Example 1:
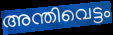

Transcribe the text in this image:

അന്തിവെട്ടം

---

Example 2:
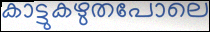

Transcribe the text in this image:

കാട്ടുകഴുതപോലെ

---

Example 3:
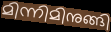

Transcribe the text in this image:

മിന്നിമിനുങ്ങി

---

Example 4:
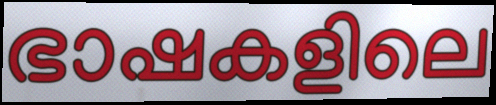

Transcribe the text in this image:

ഭാഷകളിലെ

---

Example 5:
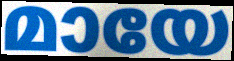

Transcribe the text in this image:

മായേ